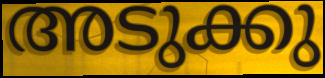
അടുക്കു